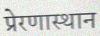
प्रेरणास्थान